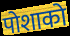
पोशाको